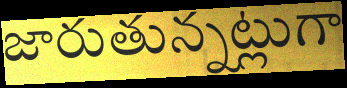
జారుతున్నట్లుగా